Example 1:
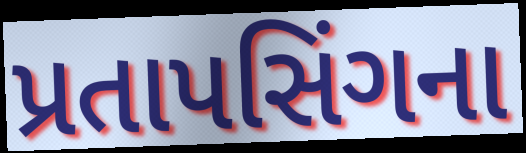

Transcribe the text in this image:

પ્રતાપસિંગના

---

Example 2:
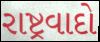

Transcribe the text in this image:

રાષ્ટ્રવાદો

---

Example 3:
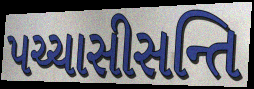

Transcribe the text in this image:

પચ્ચાસીસન્તિ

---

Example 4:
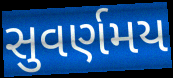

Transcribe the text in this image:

સુવર્ણમય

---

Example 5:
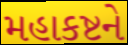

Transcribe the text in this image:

મહાકષ્ટને